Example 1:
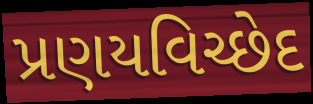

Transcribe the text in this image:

પ્રણયવિચ્છેદ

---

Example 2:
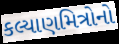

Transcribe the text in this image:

કલ્યાણમિત્રોનો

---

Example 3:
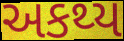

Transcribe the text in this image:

અકથ્ય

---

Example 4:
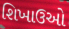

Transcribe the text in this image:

શિખાઉઓ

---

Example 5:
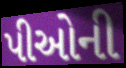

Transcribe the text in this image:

પીઓની